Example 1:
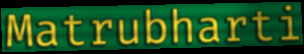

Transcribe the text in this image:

Matrubharti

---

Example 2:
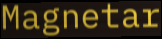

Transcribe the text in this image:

Magnetar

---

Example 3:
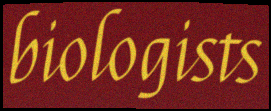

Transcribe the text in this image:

biologists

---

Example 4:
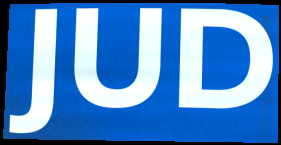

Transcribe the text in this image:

JUD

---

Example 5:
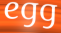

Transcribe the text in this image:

egg